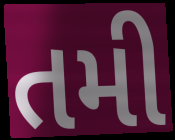
તમી